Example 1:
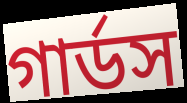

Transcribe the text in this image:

গার্ডস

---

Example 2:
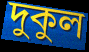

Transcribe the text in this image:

দুকুল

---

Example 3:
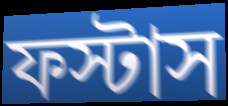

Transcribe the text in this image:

ফস্টাস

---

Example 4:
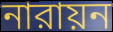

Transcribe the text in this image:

নারায়ন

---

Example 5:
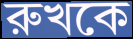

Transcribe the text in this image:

রুখকে